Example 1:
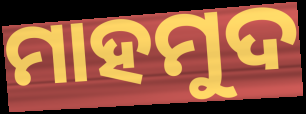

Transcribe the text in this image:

ମାହମୁଦ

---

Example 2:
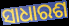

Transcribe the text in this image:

ସାଧାରଶ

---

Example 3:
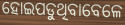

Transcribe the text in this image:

ହୋଇପଡୁଥିବାବେଳେ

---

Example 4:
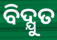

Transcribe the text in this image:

ବିଦ୍ଯୁତ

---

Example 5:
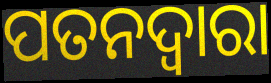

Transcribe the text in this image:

ପତନଦ୍ୱାରା